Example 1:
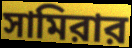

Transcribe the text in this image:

সামিরার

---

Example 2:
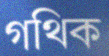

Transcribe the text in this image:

গথিক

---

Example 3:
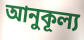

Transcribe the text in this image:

আনুকূল্য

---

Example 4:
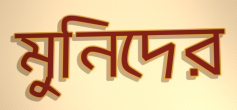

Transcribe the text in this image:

মুনিদের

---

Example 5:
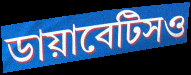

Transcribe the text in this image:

ডায়াবেটিসও